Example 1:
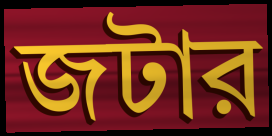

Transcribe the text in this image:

জটার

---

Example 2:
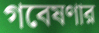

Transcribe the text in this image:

গবেষণার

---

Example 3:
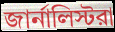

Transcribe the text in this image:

জার্নালিস্টরা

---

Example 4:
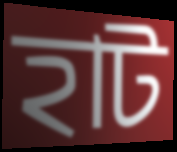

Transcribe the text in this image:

হাট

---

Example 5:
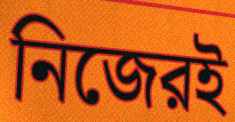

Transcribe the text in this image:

নিজেরই